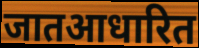
जातआधारित